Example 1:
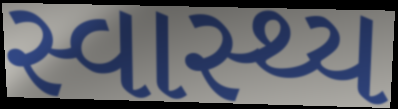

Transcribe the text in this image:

સ્વાસ્થ્ય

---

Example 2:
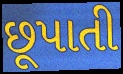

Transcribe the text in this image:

છૂપાતી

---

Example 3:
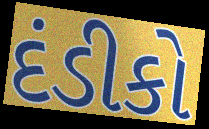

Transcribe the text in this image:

દંડીકો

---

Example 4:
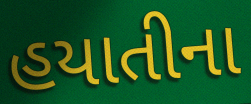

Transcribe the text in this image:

હયાતીના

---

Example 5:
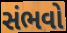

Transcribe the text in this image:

સંભવો